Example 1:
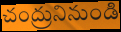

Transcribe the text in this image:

చంద్రునినుండి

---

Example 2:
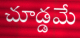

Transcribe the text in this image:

చూడ్డమే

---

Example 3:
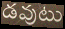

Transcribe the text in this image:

డవుటు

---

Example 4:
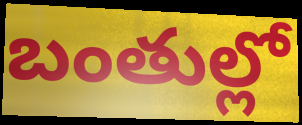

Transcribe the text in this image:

బంతుల్లో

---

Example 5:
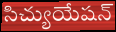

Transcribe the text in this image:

సిచ్యుయేషన్